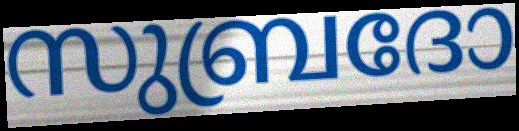
സുബ്രദോ